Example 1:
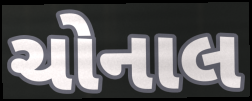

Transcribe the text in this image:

ચોનાલ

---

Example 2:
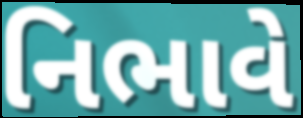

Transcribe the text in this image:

નિભાવે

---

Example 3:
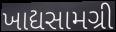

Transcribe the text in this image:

ખાદ્યસામગ્રી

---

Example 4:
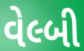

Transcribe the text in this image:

વેલ્બી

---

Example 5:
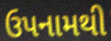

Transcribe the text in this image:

ઉપનામથી